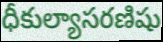
ధీకుల్యాసరణిషు